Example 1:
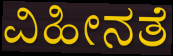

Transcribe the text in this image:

ವಿಹೀನತೆ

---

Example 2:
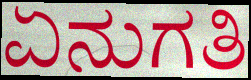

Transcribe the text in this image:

ಏನುಗತಿ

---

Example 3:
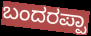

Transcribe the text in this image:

ಬಂದರಪ್ಪಾ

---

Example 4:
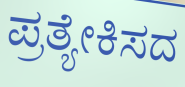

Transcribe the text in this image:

ಪ್ರತ್ಯೇಕಿಸದ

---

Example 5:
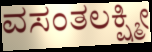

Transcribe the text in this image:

ವಸಂತಲಕ್ಷ್ಮೀ